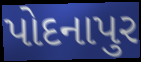
પોદનાપુર